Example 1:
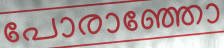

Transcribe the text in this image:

പോരാഞ്ഞോ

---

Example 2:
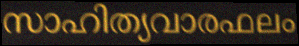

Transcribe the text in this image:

സാഹിത്യവാരഫലം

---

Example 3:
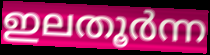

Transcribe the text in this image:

ഇലതൂർന്ന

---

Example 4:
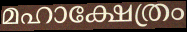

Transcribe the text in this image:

മഹാക്ഷേത്രം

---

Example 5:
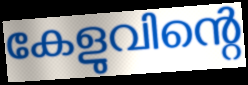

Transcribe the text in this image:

കേളുവിന്റെ